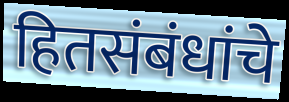
हितसंबंधांचे